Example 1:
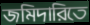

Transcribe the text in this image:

জমিদারিতে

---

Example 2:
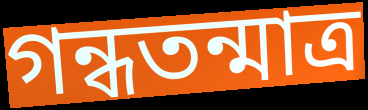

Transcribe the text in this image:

গন্ধতন্মাত্র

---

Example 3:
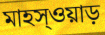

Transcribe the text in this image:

মাহস্ওয়াড়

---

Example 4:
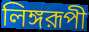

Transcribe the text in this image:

লিঙ্গরূপী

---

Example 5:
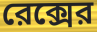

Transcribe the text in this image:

রেক্সের